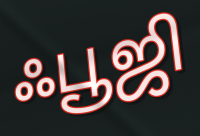
ஃபூஜி